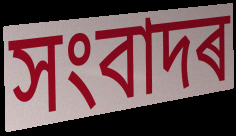
সংবাদৰ